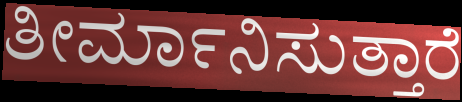
ತೀರ್ಮಾನಿಸುತ್ತಾರೆ